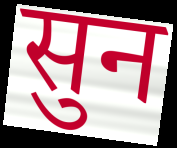
सुन